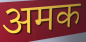
अमक